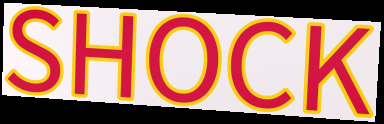
SHOCK